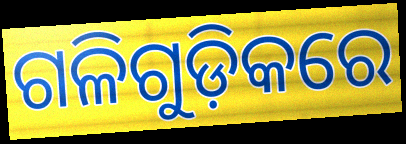
ଗଳିଗୁଡ଼ିକରେ